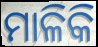
ମାଳିକି